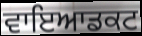
ਵਾਇਆਡਕਟ